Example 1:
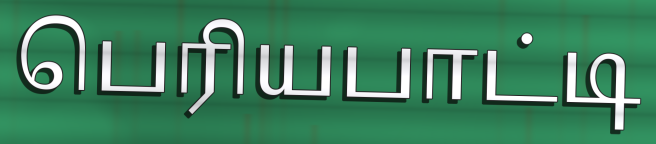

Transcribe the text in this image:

பெரியபாட்டி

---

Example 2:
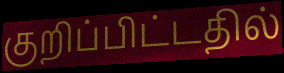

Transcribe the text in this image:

குறிப்பிட்டதில்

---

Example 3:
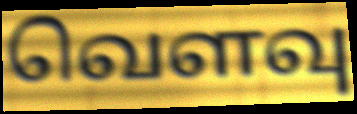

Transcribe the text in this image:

வெளவு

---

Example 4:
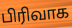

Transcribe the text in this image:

பிரிவாக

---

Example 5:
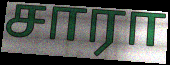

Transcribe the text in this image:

சாரா